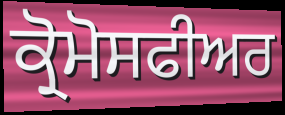
ਕ੍ਰੋਮੋਸਫੀਅਰ